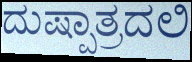
ದುಷ್ಪಾತ್ರದಲಿ